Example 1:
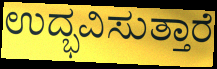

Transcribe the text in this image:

ಉದ್ಭವಿಸುತ್ತಾರೆ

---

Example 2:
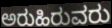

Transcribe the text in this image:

ಅರುಹಿರುವರು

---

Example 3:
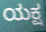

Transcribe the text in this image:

ಯಕ್ಷ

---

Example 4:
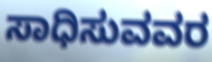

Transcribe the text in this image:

ಸಾಧಿಸುವವರ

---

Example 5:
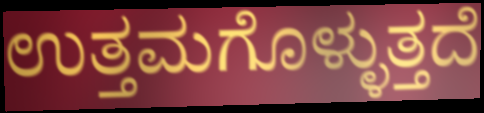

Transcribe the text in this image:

ಉತ್ತಮಗೊಳ್ಳುತ್ತದೆ